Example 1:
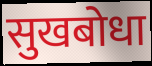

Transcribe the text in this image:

सुखबोधा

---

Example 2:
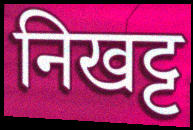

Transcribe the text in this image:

निखट्ट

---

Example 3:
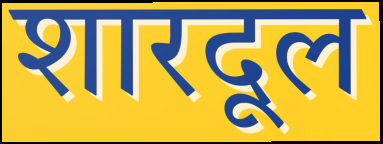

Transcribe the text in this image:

शारदूल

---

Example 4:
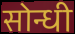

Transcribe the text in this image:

सोन्धी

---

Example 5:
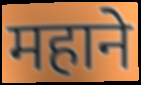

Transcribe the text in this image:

महाने